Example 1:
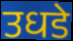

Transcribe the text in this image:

उधडे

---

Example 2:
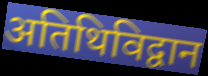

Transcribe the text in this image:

अतिथिविद्वान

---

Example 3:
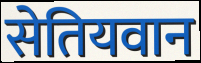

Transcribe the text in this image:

सेतियवान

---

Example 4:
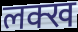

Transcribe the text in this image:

लक्ख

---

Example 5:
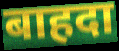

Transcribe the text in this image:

बाहदा